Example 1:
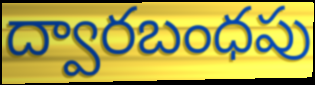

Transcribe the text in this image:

ద్వారబంధపు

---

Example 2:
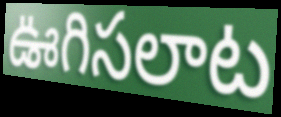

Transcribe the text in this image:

ఊగిసలాట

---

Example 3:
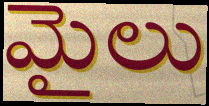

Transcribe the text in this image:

మైలు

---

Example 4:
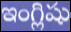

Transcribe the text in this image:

ఇంగ్లిషు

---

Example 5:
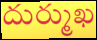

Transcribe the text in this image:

దుర్ముఖ